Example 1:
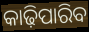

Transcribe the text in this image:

କାଢ଼ିପାରିବ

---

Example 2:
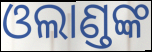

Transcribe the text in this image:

ଓଲାଣ୍ଡଙ୍କ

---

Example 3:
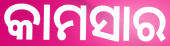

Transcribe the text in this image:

କାମସାର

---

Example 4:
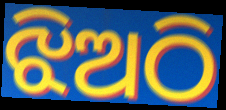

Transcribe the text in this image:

ଝିଅଠି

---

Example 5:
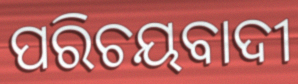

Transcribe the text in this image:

ପରିଚୟବାଦୀ